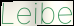
Leibe